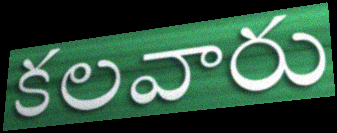
కలవారు